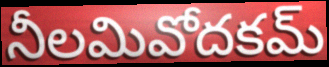
నీలమివోదకమ్